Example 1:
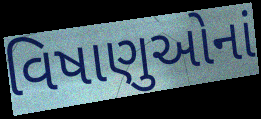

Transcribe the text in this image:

વિષાણુઓનાં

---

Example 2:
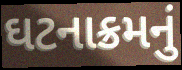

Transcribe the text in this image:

ઘટનાક્રમનું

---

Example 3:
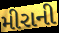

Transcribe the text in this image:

મીરાની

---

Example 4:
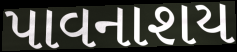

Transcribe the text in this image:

પાવનાશય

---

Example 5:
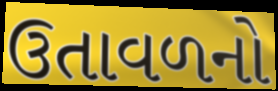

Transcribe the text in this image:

ઉતાવળનો